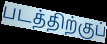
படத்திற்குப்